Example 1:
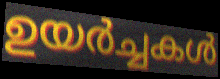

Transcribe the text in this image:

ഉയർച്ചകൾ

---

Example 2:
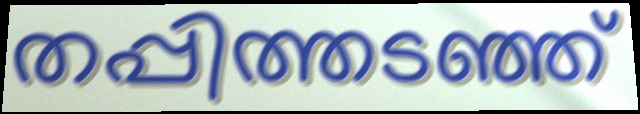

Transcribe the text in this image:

തപ്പിത്തടഞ്ഞ്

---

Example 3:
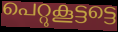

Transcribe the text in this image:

പെറ്റുകൂട്ടട്ടെ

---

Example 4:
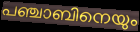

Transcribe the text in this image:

പഞ്ചാബിനെയും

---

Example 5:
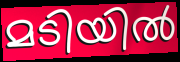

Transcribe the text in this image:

മടിയിൽ